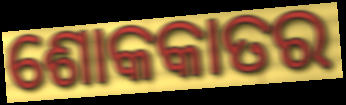
ଶୋକକାତର